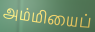
அம்மியைப்